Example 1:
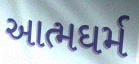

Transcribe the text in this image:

આત્મઘર્મ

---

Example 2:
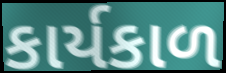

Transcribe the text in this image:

કાર્યકાળ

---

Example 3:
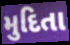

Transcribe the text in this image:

મુદિતા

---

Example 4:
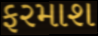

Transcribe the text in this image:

ફરમાશ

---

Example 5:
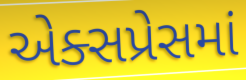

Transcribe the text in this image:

એક્સપ્રેસમાં